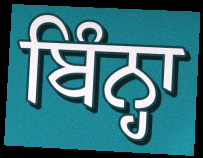
ਬਿੰਨ੍ਹਾ